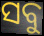
ସବୁ